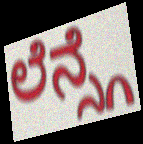
ಲೆನ್ಸ್ಗೆ